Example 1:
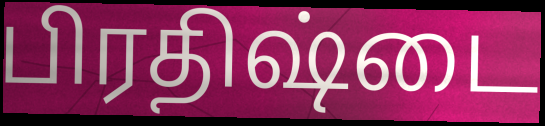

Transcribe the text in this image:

பிரதிஷ்டை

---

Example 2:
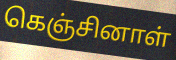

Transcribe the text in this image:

கெஞ்சினாள்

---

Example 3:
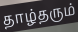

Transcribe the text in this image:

தாழ்தரும்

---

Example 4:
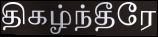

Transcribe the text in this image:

திகழ்ந்தீரே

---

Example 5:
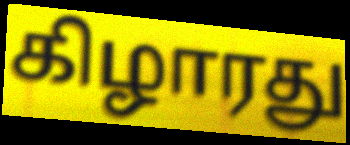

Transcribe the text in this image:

கிழாரது